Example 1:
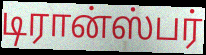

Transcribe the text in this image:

டிரான்ஸ்பர்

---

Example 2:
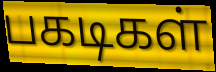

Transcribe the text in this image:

பகடிகள்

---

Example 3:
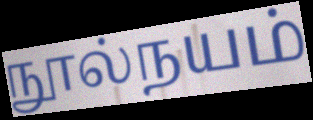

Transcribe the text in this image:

நூல்நயம்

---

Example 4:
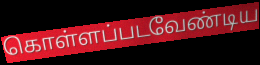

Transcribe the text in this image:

கொள்ளப்படவேண்டிய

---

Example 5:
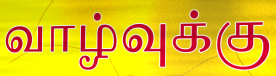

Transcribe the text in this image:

வாழ்வுக்கு